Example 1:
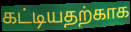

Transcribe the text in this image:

கட்டியதற்காக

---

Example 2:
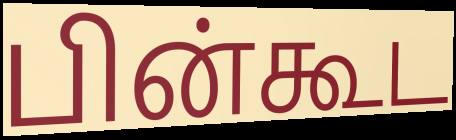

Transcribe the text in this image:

பின்கூட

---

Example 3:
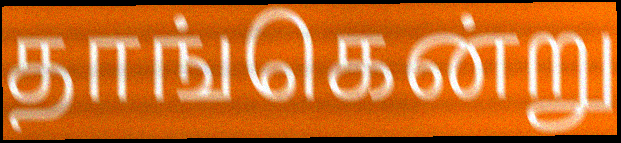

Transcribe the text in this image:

தாங்கென்று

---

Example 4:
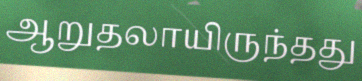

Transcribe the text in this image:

ஆறுதலாயிருந்தது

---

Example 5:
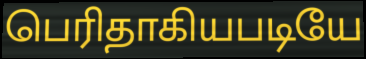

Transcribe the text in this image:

பெரிதாகியபடியே